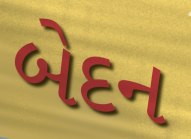
બેદન